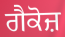
ਗੈਕੋਜ਼